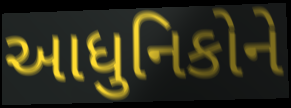
આધુનિકોને